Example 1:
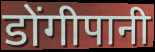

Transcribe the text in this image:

डोंगीपानी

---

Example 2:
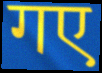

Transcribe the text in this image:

गए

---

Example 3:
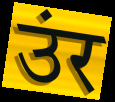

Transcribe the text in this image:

उंर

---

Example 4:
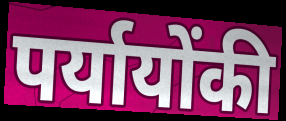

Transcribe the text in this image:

पर्यायोंकी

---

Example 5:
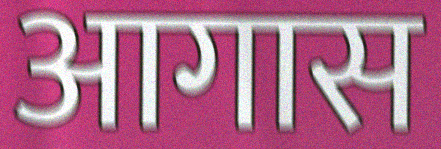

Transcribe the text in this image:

आगास